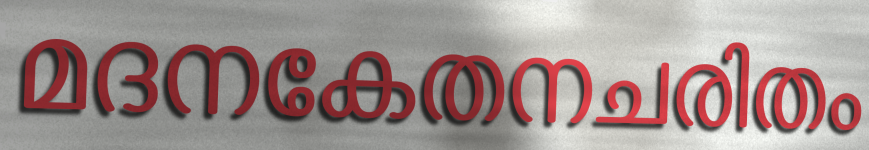
മദനകേതനചരിതം